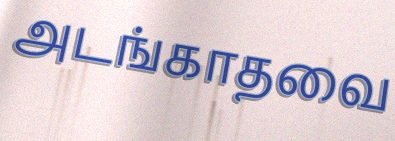
அடங்காதவை